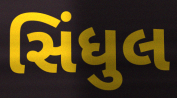
સિંધુલ